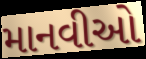
માનવીઓ